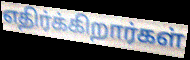
எதிர்க்கிறார்கள்